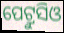
ପେଟ୍ରୁସିଓ